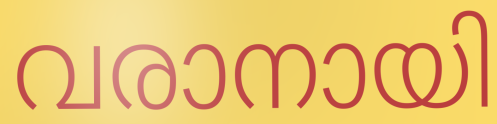
വരാനായി